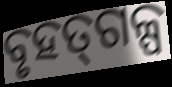
ବୃହତ୍‌ଗଳ୍ପ